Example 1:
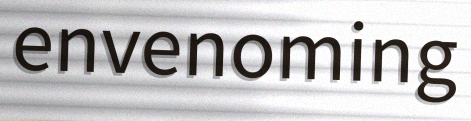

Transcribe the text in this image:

envenoming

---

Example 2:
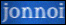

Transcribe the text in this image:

jonnoi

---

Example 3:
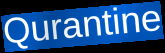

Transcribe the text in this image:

Qurantine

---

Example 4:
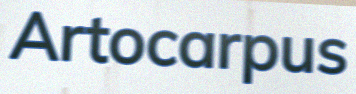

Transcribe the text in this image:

Artocarpus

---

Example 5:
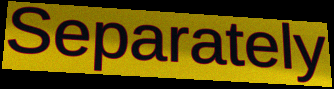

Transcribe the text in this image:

Separately